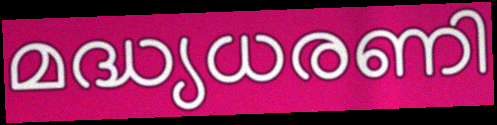
മദ്ധ്യധരണി